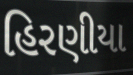
હિરણીયા